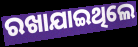
ରଖାଯାଇଥିଲେ